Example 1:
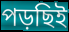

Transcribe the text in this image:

পড়ছিই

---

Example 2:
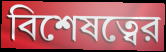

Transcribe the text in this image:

বিশেষত্বের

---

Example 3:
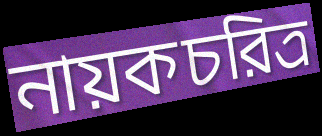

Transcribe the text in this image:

নায়কচরিত্র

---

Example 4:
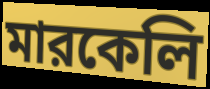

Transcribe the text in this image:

মারকেলি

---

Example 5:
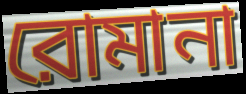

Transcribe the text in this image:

রোমানা